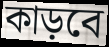
কাড়বে